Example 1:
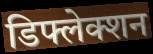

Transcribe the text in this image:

डिफ्लेक्शन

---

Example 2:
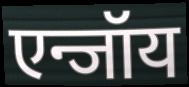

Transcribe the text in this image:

एन्जॉय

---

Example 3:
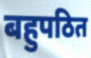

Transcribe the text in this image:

बहुपठित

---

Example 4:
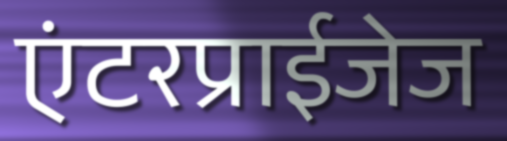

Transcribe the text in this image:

एंटरप्राईजेज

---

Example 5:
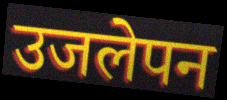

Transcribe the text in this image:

उजलेपन